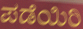
ಪಡೆಯಿರಿ